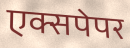
एक्सपेपर